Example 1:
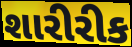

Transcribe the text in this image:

શારીરીક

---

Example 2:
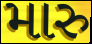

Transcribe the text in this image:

મારુ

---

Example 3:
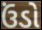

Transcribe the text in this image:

ઉંડો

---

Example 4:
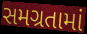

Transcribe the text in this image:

સમગ્રતામાં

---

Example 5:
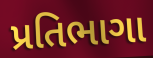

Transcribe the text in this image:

પ્રતિભાગા